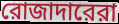
রোজাদারেরা